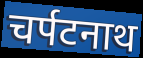
चर्पटनाथ